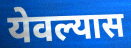
येवल्यास